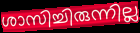
ശാസിച്ചിരുന്നില്ല